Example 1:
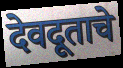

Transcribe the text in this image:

देवदूताचे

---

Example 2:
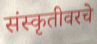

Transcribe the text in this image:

संस्कृतीवरचे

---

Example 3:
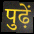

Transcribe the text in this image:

पुढ़ें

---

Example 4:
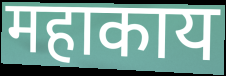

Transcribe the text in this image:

महाकाय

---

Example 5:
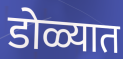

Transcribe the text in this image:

डोळ्यात